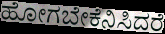
ಹೋಗಬೇಕೆನಿಸಿದರೆ